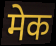
मेक